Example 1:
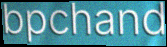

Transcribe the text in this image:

bpchand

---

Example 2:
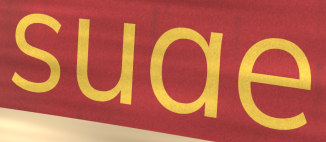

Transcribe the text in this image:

suae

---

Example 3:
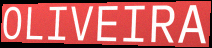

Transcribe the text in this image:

OLIVEIRA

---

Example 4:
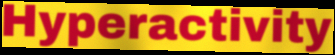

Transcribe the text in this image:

Hyperactivity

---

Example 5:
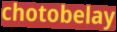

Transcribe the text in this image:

chotobelay